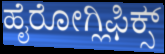
ಹೈರೋಗ್ಲಿಫಿಕ್ಸ್